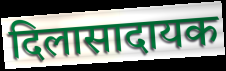
दिलासादायक